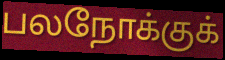
பலநோக்குக்